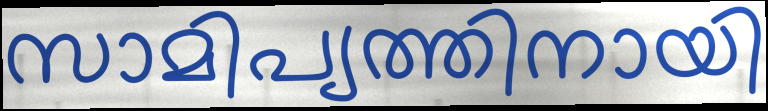
സാമിപ്യത്തിനായി